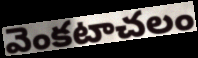
వెంకటాచలం